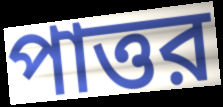
পাত্তর